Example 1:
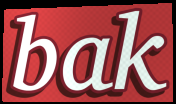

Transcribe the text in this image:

bak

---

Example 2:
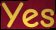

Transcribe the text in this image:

Yes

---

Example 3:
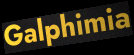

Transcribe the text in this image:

Galphimia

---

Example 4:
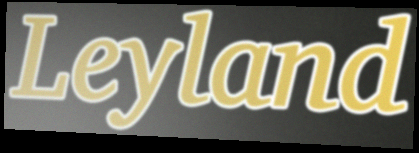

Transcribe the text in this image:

Leyland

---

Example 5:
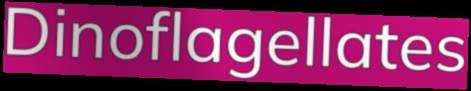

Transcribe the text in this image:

Dinoflagellates